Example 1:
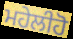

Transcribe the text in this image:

ਮਹੇਲੀਹੋ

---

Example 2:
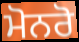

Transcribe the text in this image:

ਮੋਨਰੋ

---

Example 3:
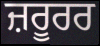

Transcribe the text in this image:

ਜ਼ਰੂਰਰ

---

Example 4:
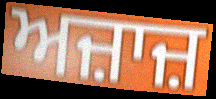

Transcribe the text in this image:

ਅਜ਼ਾਜ਼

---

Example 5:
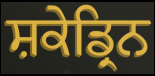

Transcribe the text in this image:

ਸ਼ਕੇਡ੍ਰਿਨ